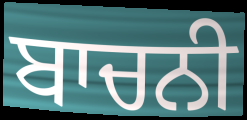
ਬਾਚਨੀ